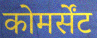
कोमर्सेंट